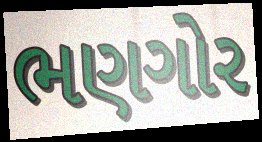
ભણગોર